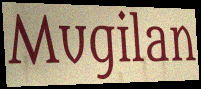
Mugilan